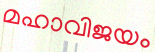
മഹാവിജയം